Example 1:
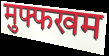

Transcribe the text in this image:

मुफ्फखम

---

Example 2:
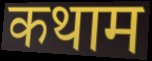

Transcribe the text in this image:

कथाम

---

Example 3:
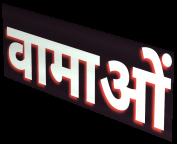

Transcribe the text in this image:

वामाओं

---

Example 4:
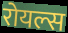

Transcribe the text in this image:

रोयल्स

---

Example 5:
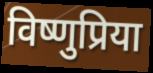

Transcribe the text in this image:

विष्णुप्रिया